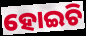
ହୋଇଚି